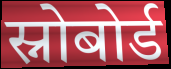
स्नोबोर्ड